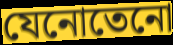
যেনোতেনো